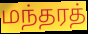
மந்தரத்